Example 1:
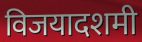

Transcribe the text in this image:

विजयादशमी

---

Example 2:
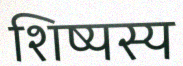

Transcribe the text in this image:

शिष्यस्य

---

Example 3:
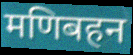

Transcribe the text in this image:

मणिबहन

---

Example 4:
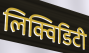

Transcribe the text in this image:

लिक्विडिटी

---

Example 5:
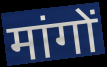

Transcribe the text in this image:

मांगों